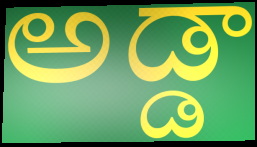
అడ్డా